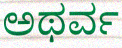
ಅಥರ್ವ